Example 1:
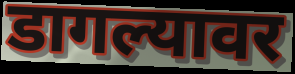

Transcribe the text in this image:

डागल्यावर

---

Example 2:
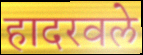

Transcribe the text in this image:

हादरवले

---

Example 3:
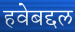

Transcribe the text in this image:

हवेबद्दल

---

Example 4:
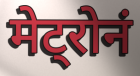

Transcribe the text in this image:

मेट्रोनं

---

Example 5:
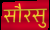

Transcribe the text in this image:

सौरसु